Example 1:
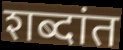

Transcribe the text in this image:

शब्दांत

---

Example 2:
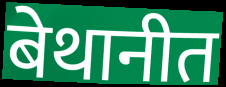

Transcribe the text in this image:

बेथानीत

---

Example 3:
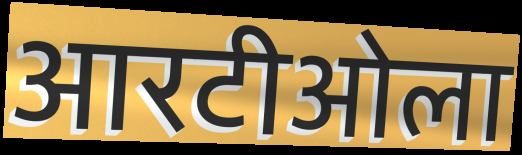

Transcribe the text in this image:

आरटीओला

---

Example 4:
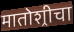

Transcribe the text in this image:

मातोश्रीचा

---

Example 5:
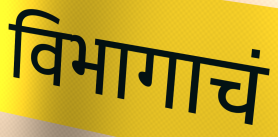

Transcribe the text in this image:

विभागाचं